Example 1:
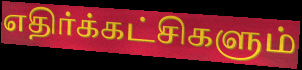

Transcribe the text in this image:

எதிர்க்கட்சிகளும்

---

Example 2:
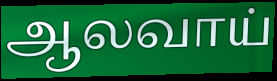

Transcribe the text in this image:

ஆலவாய்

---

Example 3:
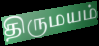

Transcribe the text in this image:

திருமயம்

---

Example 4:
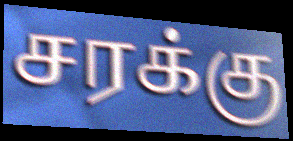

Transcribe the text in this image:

சரக்கு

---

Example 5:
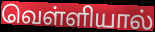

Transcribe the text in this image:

வெள்ளியால்